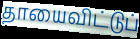
தாயைவிட்டுப்